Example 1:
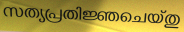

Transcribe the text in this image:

സത്യപ്രതിജ്ഞചെയ്തു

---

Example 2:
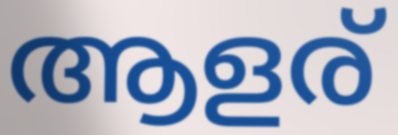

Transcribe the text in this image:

ആളര്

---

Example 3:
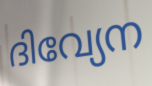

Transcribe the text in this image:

ദിവ്യേന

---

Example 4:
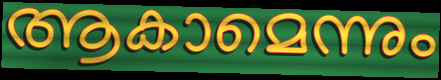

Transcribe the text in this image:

ആകാമെന്നും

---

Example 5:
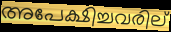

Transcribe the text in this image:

അപേക്ഷിച്ചവരില്